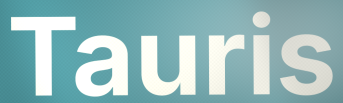
Tauris